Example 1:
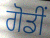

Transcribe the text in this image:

ਗੋਡੀਂ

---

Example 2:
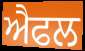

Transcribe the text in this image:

ਐਫਲ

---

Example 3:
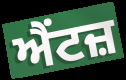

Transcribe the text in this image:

ਐਂਟਜ਼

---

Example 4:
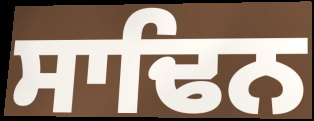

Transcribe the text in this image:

ਸਾਢਿਨ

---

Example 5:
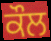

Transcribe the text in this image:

ਕੌਲ